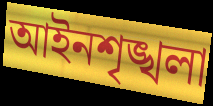
আইনশৃঙ্খলা